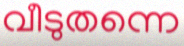
വീടുതന്നെ